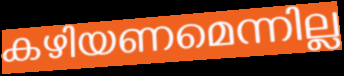
കഴിയണമെന്നില്ല